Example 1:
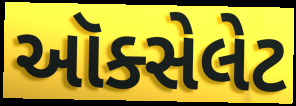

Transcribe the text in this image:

ઑક્સેલેટ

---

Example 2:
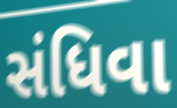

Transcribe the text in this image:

સંધિવા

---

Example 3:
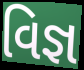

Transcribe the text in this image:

વિજ્ઞ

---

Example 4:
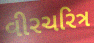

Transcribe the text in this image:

વીરચરિત્ર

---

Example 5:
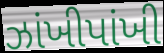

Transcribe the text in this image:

ઝાંખીપાંખી